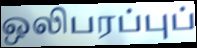
ஒலிபரப்புப்